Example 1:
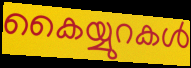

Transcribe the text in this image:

കൈയ്യുറകൾ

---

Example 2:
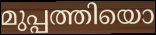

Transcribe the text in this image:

മുപ്പത്തിയൊ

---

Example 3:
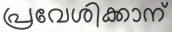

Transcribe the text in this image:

പ്രവേശിക്കാന്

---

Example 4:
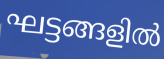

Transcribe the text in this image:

ഘട്ടങ്ങളിൽ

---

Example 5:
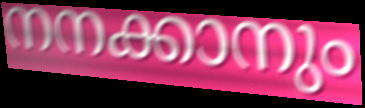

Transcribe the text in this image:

നനക്കാനും